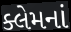
ક્લેમનાં